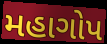
મહાગોપ